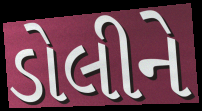
ડોલીને